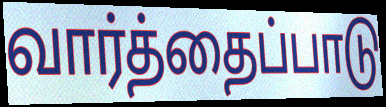
வார்த்தைப்பாடு